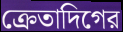
ক্রেতাদিগের